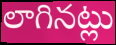
లాగినట్లు